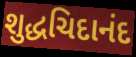
શુદ્ધચિદાનંદ